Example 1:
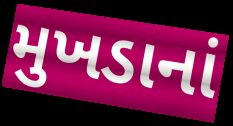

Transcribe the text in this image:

મુખડાનાં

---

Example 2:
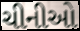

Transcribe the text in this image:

ચીનીઓ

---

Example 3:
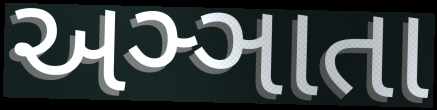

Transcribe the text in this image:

અઞ્ઞાતા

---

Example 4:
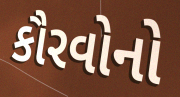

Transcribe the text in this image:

કૌરવોનો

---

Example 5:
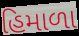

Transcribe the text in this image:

હિમાળા